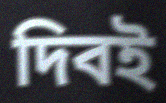
দিবই